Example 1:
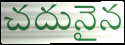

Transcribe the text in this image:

చదునైన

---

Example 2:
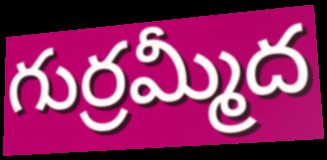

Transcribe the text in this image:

గుర్రమ్మీద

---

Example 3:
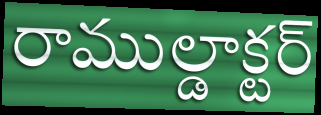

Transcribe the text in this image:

రాముల్డాక్టర్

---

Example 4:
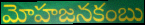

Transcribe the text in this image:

మోహజనకంబు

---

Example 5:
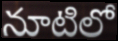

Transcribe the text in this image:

నూటిలో